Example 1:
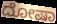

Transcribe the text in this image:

ದೋಷಾ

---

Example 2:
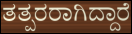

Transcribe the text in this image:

ತತ್ಪರರಾಗಿದ್ದಾರೆ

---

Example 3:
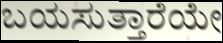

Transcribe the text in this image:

ಬಯಸುತ್ತಾರೆಯೇ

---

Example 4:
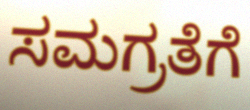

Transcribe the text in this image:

ಸಮಗ್ರತೆಗೆ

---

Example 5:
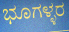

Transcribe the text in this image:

ಭೂಗಳ್ಳರ